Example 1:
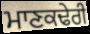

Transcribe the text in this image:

ਮਾਣਕਢੇਰੀ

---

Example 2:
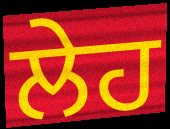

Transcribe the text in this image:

ਲੇਹ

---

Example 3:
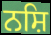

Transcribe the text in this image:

ਨਸ਼ਿ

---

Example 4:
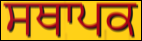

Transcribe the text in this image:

ਸਥਾਪਕ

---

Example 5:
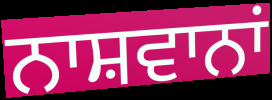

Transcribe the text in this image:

ਨਾਸ਼ਵਾਨਾਂ